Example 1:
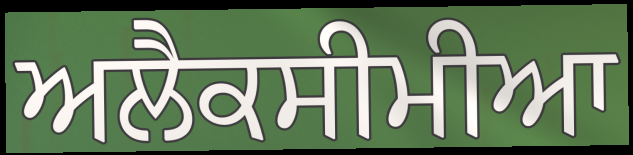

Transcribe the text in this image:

ਅਲੈਕਸੀਮੀਆ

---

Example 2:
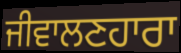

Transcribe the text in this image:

ਜੀਵਾਲਣਹਾਰਾ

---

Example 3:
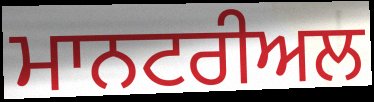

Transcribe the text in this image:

ਮਾਨਟਰੀਅਲ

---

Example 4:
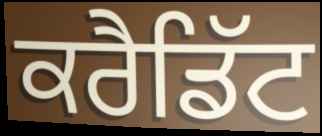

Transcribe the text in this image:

ਕਰੈਡਿੱਟ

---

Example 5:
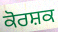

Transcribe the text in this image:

ਕੋਰਸ਼ਕ